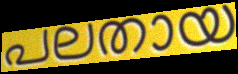
പലതായ